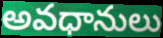
అవధానులు